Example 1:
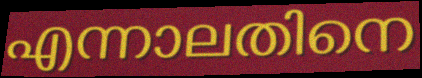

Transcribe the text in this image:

എന്നാലതിനെ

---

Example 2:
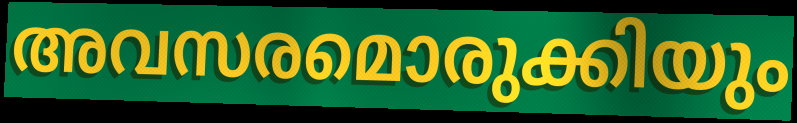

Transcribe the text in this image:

അവസരമൊരുക്കിയും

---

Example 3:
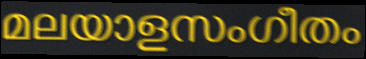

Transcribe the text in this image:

മലയാളസംഗീതം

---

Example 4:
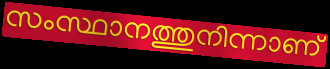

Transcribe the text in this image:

സംസ്ഥാനത്തുനിന്നാണ്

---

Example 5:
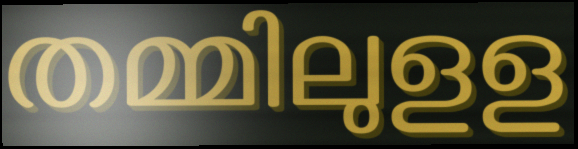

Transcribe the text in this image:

തമ്മിലുളള